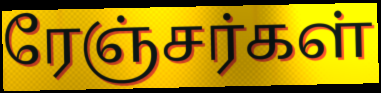
ரேஞ்சர்கள்